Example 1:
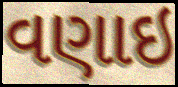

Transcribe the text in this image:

વણાઇ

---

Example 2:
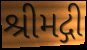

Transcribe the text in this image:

શ્રીમદ્ગી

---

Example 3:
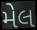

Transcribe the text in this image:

મેલ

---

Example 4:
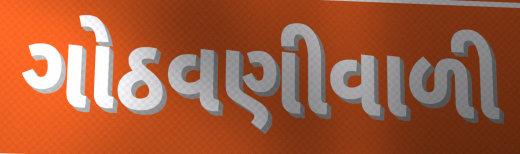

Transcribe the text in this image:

ગોઠવણીવાળી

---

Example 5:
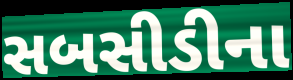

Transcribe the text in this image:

સબસીડીના